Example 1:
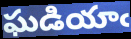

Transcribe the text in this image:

ఘడియాఁ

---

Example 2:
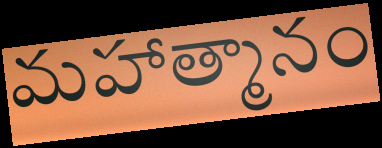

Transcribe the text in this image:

మహాత్మానం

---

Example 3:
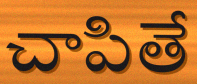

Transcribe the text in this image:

చాపితే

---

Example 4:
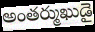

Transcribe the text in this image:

అంతర్ముఖుడై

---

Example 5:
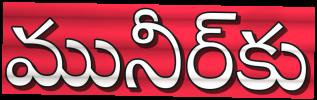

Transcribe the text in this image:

మునీర్‌కు